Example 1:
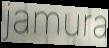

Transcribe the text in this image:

jamura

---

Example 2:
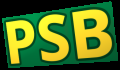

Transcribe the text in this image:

PSB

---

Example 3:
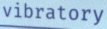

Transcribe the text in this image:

vibratory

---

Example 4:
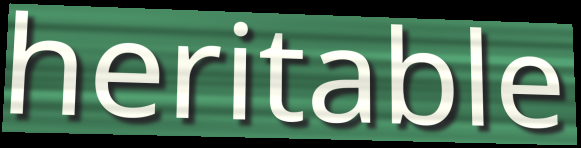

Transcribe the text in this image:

heritable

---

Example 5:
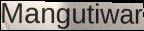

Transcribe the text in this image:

Mangutiwar